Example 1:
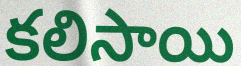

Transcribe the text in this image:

కలిసాయి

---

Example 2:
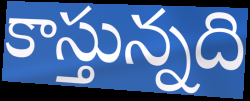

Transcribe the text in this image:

కాస్తున్నది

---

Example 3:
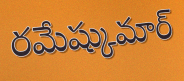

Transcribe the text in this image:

రమేష్కుమార్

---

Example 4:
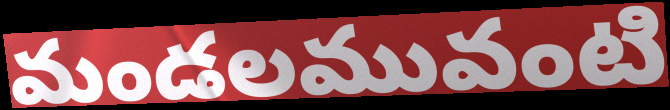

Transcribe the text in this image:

మండలమువంటి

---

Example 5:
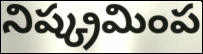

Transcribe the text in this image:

నిష్క్రమింప